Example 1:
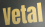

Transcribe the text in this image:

Vetal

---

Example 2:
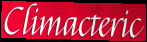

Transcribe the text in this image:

Climacteric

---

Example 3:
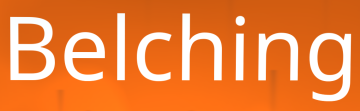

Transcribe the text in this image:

Belching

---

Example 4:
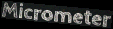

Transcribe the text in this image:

Micrometer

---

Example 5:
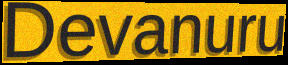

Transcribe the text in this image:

Devanuru